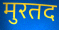
मुरतद